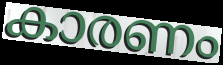
കാരണം